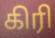
கிரி